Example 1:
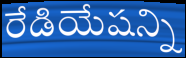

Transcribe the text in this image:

రేడియేషన్ని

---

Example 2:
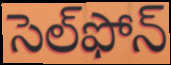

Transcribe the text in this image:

సెల్‌ఫోన్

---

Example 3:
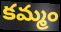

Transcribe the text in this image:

కమ్మం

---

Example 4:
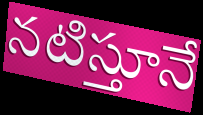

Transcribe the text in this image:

నటిస్తూనే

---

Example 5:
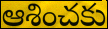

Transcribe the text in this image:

ఆశించకు